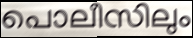
പൊലീസിലും